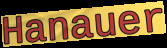
Hanauer